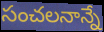
సంచలనాన్నే